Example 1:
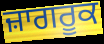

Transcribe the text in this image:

ਜ਼ਾਗਰੂਕ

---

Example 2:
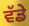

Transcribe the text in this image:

ਵੱਡੇ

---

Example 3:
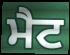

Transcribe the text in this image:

ਮੈਟ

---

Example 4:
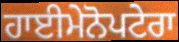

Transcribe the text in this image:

ਹਾਈਮੇਨੋਪਟੇਰਾ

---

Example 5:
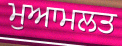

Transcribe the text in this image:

ਮੁਆਮਲਤ